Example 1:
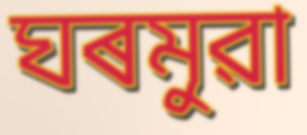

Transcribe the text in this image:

ঘৰমুৱা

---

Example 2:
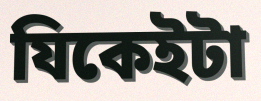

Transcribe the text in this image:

যিকেইটা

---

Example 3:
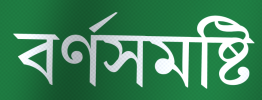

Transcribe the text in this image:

বৰ্ণসমষ্টি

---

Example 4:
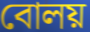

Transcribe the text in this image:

বোলয়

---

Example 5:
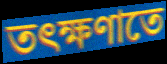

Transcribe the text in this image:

তৎক্ষণাতে